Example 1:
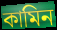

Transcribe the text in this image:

কামিন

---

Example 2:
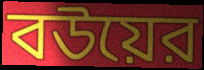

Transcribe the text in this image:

বউয়ের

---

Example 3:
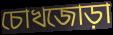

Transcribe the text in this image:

চোখজোড়া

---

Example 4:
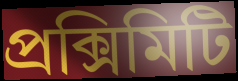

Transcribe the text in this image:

প্রক্সিমিটি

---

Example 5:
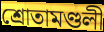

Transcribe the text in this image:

শ্রোতামণ্ডলী